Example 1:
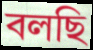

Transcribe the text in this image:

বলছি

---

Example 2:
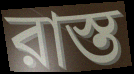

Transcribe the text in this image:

রাস্ত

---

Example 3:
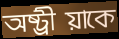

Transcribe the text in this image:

অষ্ট্রীয়াকে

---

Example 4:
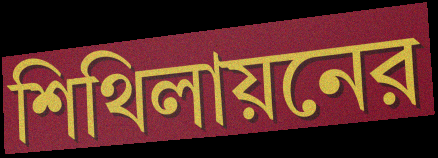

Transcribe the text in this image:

শিথিলায়নের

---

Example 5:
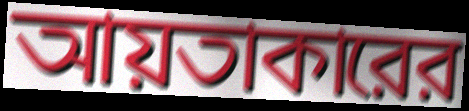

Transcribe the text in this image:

আয়তাকারের